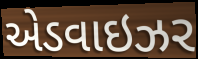
એડવાઇઝર